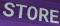
STORE